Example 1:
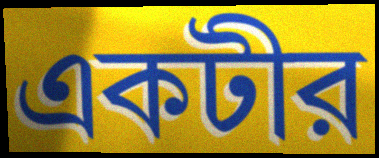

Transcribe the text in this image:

একটীর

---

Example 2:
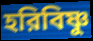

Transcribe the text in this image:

হরিবিষ্ণু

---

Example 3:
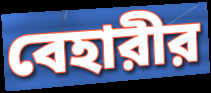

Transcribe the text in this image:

বেহারীর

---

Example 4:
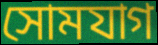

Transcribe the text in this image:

সোমযাগ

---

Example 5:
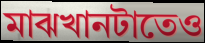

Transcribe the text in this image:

মাঝখানটাতেও